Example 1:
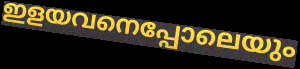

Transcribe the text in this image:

ഇളയവനെപ്പോലെയും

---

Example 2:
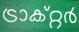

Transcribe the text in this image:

ട്രാക്റ്റർ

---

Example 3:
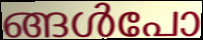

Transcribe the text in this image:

ങ്ങൾപോ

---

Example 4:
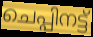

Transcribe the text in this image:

ചെപ്പിനട്ട്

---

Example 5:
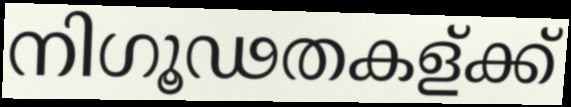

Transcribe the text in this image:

നിഗൂഢതകള്ക്ക്